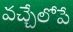
వచ్చేలోపే